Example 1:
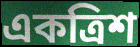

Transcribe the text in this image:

একত্রিশ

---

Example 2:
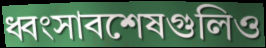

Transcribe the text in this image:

ধ্বংসাবশেষগুলিও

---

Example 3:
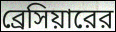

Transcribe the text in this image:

ব্রেসিয়ারের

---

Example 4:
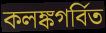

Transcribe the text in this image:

কলঙ্কগর্বিত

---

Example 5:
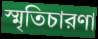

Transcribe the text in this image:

স্মৃতিচারণা